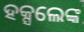
ହକ୍ସଲେଙ୍କ